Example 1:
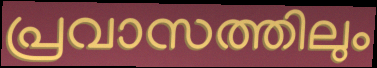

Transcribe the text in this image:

പ്രവാസത്തിലും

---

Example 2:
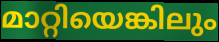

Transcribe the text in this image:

മാറ്റിയെങ്കിലും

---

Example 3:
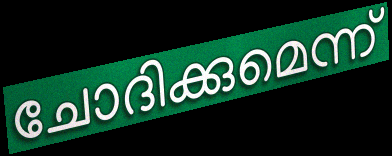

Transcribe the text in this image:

ചോദിക്കുമെന്ന്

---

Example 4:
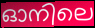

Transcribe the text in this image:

ഓനിലെ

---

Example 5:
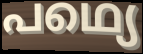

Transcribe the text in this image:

പഥ്യെ